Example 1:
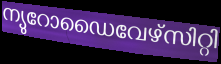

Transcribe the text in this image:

ന്യുറോഡൈവേഴ്സിറ്റി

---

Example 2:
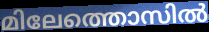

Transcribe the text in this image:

മിലേത്തൊസിൽ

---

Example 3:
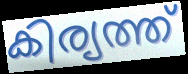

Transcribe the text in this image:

കിര്യത്ത്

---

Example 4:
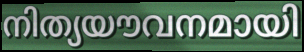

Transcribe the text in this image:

നിത്യയൗവനമായി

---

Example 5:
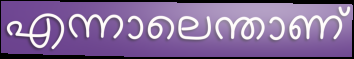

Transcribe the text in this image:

എന്നാലെന്താണ്